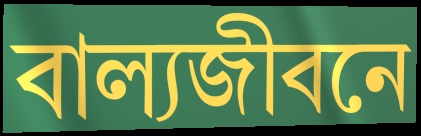
বাল্যজীবনে